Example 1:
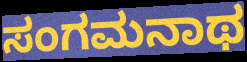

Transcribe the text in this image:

ಸಂಗಮನಾಥ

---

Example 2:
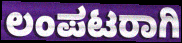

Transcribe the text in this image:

ಲಂಪಟರಾಗಿ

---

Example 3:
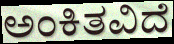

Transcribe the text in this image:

ಅಂಕಿತವಿದೆ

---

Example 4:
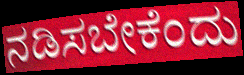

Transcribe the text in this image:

ನಡಿಸಬೇಕೆಂದು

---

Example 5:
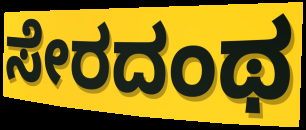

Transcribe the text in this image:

ಸೇರದಂಥ